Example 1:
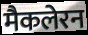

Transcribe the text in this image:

मैकलेरन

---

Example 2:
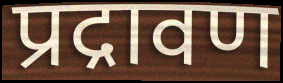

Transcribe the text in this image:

प्रद्रावण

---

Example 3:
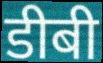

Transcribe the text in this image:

डीबी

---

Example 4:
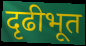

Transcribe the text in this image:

दृढीभूत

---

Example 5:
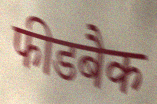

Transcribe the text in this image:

फीडबैक